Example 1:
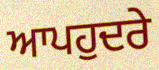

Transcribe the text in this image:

ਆਪਹੁਦਰੇ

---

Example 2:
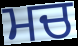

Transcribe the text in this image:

ਮਚ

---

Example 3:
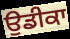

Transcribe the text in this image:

ਉਡੀਕਾ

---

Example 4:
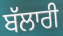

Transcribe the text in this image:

ਬੱਲਾਰੀ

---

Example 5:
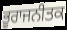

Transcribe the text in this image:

ਭੂਰਾਜਨੀਤਕ